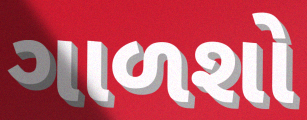
ગાળશો